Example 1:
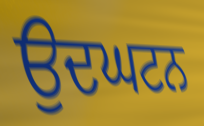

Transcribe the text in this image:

ਉਦਘਟਨ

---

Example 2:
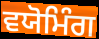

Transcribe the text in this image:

ਵਯੋਮਿੰਗ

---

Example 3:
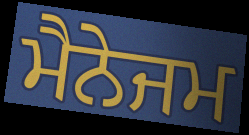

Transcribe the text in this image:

ਮੈਨੇਜਮ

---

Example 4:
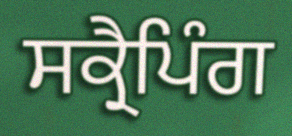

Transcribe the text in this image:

ਸਕ੍ਰੈਪਿੰਗ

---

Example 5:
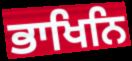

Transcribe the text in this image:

ਭਾਖਿਨਿ